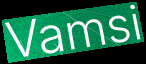
Vamsi